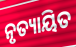
ନୃତ୍ୟାୟିତ